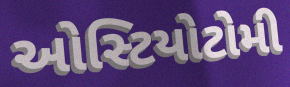
ઓસ્ટિયોટોમી